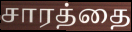
சாரத்தை